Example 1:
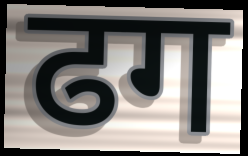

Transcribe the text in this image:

ढग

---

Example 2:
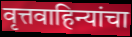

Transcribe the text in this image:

वृत्तवाहिन्यांचा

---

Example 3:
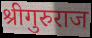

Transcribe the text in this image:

श्रीगुरुराज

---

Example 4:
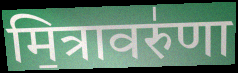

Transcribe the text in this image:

मि॒त्रावरु॑णा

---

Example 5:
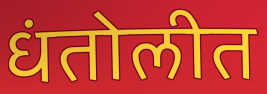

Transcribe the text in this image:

धंतोलीत